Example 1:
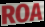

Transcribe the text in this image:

ROA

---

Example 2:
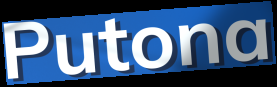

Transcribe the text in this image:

Putona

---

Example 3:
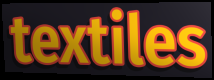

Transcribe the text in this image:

textiles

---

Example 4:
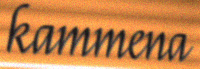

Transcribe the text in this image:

kammena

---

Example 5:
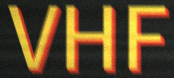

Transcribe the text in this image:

VHF